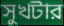
সুখটার